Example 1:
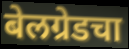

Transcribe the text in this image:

बेलग्रेडचा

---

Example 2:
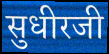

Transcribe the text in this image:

सुधीरजी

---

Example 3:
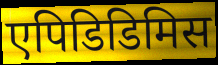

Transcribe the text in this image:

एपिडिडिमिस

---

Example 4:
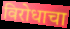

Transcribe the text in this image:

विरोधाचा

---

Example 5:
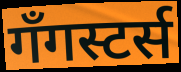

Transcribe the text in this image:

गँगस्टर्स